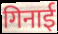
गिनाई